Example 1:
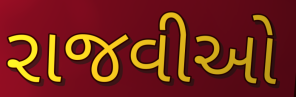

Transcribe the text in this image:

રાજવીઓ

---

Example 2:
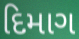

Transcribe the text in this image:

દિમાગ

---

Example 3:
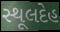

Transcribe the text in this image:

સ્થૂલદેહ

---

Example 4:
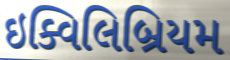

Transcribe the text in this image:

ઇક્વિલિબ્રિયમ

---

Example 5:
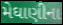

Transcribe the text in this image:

મેઘાણીના